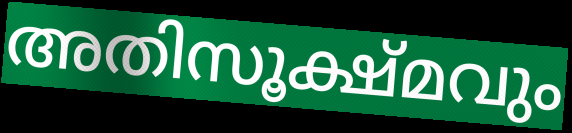
അതിസൂക്ഷ്മവും